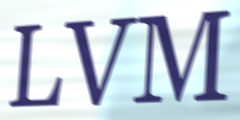
LVM